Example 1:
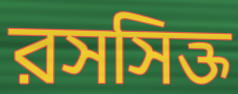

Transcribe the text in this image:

রসসিক্ত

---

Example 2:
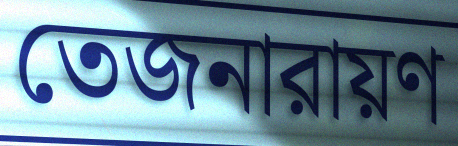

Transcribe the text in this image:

তেজনারায়ণ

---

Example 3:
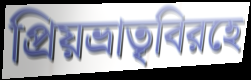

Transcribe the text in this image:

প্রিয়ভ্রাতৃবিরহে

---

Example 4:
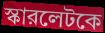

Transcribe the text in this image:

স্কারলেটকে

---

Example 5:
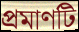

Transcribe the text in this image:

প্রমাণটি